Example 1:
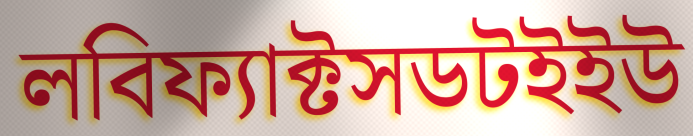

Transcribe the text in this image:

লবিফ্যাক্টসডটইইউ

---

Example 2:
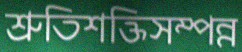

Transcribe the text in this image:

শ্রুতিশক্তিসম্পন্ন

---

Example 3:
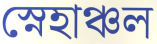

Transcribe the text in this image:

স্নেহাঞ্চল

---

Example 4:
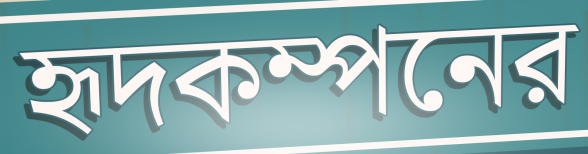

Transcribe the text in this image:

হৃদকম্পনের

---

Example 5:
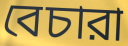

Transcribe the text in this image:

বেচারা